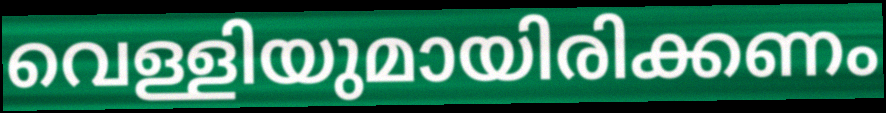
വെള്ളിയുമായിരിക്കണം